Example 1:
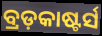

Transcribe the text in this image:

ବ୍ରଡ଼କାଷ୍ଟର୍ସ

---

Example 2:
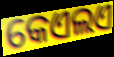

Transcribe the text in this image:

କେଏଲଏ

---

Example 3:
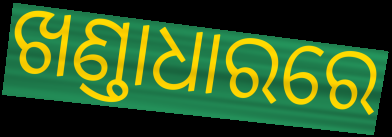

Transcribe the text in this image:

ଖଣ୍ଡାଧାରରେ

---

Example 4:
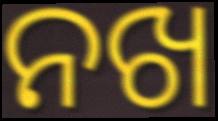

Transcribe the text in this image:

ନଖ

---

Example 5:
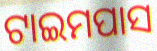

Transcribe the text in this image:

ଟାଇମପାସ